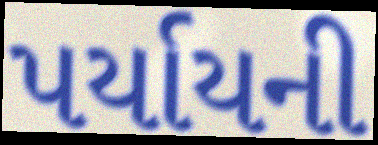
પર્યાયની